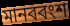
মানববংশ